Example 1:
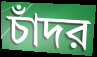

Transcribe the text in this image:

চাঁদর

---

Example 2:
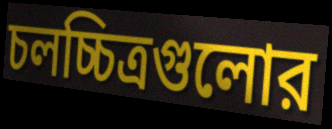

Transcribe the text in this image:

চলচ্চিত্রগুলোর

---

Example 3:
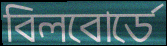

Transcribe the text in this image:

বিলবোর্ডে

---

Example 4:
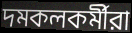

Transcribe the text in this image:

দমকলকর্মীরা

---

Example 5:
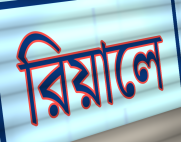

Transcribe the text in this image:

রিয়ালে